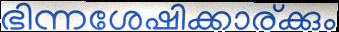
ഭിന്നശേഷിക്കാര്ക്കും